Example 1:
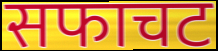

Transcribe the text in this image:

सफाचट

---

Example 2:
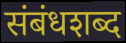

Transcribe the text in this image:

संबंधशब्द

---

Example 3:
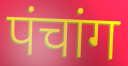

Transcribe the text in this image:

पंचांग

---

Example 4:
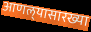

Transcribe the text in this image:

आणल्यासारख्या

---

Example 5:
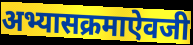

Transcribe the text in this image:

अभ्यासक्रमाऐवजी